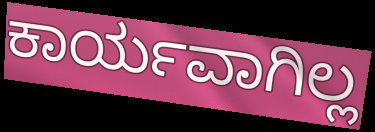
ಕಾರ್ಯವಾಗಿಲ್ಲ